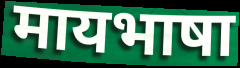
मायभाषा